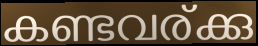
കണ്ടവര്ക്കു